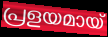
പ്രളയമായ്